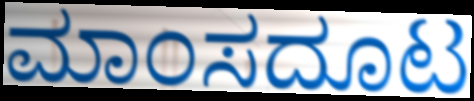
ಮಾಂಸದೂಟ